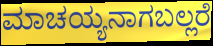
ಮಾಚಯ್ಯನಾಗಬಲ್ಲರೆ